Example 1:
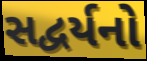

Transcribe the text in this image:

સદ્વર્યનો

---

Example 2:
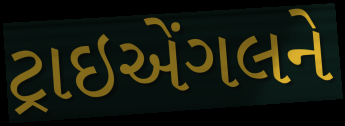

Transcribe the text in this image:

ટ્રાઇએંગલને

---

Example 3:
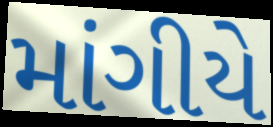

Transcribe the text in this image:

માંગીયે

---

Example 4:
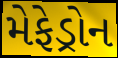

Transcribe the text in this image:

મેફેડ્રોન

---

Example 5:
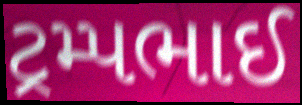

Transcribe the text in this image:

ટ્રમ્પભાઈ